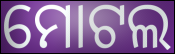
ମୋଟଲ